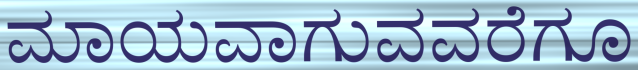
ಮಾಯವಾಗುವವರೆಗೂ